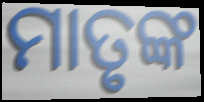
ମାତୃଙ୍କ